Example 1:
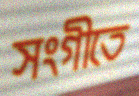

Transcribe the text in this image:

সংগীতে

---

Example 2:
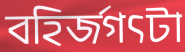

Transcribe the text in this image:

বহির্জগৎটা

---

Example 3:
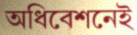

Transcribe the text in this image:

অধিবেশনেই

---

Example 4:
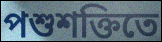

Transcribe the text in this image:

পশুশক্তিতে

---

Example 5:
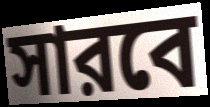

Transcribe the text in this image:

সারবে